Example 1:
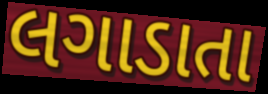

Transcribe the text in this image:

લગાડાતા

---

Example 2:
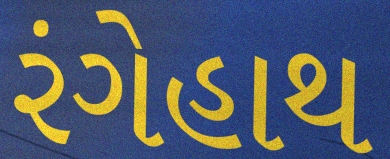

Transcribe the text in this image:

રંગેહાથ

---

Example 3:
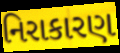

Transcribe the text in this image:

નિરાકારણ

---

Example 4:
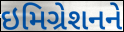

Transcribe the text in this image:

ઇમિગ્રેશનને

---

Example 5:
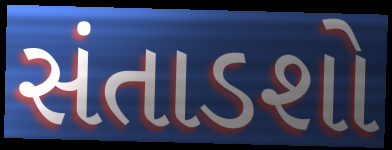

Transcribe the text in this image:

સંતાડશો